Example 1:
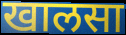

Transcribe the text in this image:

खालसा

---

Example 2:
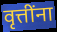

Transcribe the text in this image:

वृत्तींना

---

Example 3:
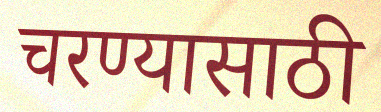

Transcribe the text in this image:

चरण्यासाठी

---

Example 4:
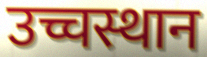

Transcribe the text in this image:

उच्चस्थान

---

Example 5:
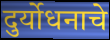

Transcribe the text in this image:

दुर्योधनाचे